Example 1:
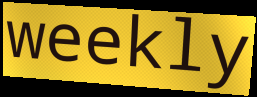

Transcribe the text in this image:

weekly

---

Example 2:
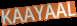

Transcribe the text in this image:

KAAYAAL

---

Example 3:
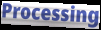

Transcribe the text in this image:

Processing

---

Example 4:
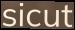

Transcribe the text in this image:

sicut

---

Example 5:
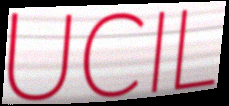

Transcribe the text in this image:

UCIL